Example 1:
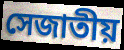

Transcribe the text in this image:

সেজাতীয়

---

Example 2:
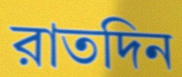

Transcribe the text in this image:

রাতদিন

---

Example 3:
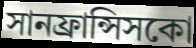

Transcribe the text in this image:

সানফ্রান্সিসকো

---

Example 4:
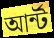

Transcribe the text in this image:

আর্ন্ট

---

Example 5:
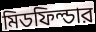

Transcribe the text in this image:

মিডফিল্ডার